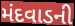
મંદવાડની